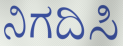
ನಿಗದಿಸಿ